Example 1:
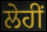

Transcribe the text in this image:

ਲੇਹੀਂ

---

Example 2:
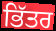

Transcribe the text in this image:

ਭਿੱਤਰ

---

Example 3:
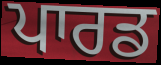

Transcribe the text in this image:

ਪਾਰਡ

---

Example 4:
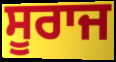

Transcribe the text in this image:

ਸੂਰਾਜ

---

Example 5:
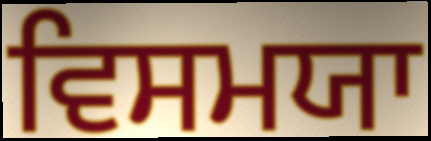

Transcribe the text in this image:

ਵਿਸਮਯਾ